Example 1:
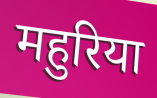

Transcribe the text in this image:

महुरिया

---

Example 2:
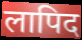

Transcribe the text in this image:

लापिद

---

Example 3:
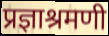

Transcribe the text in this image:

प्रज्ञाश्रमणी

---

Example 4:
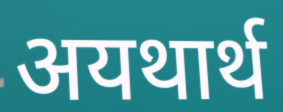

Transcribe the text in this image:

अयथार्थ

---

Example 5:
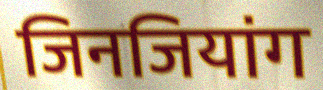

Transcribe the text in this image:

जिनजियांग